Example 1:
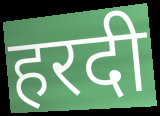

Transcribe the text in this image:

हरदी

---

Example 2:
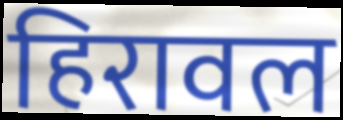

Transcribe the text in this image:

हिरावल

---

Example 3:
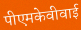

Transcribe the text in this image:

पीएमकेवीवाई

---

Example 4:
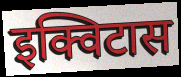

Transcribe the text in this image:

इक्विटास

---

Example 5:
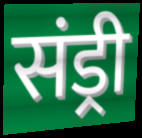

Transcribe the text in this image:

संड्री